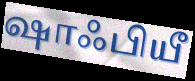
ஷாஃபியீ